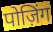
पोज़िंग